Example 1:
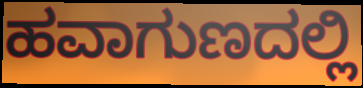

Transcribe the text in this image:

ಹವಾಗುಣದಲ್ಲಿ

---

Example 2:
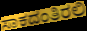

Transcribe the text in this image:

ಸಾಕದಂತಿರಲಿ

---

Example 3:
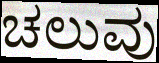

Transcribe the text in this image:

ಚಲುವು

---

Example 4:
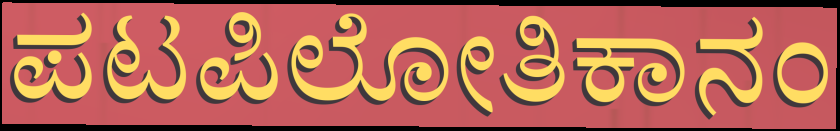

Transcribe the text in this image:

ಪಟಪಿಲೋತಿಕಾನಂ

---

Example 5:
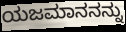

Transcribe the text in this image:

ಯಜಮಾನನನ್ನು